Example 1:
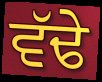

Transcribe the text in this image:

ਵੱਢੇ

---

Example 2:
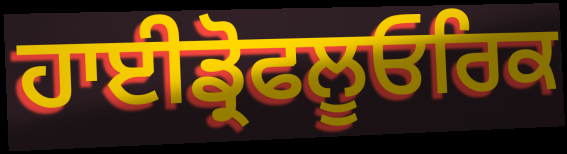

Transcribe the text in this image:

ਹਾਈਡ੍ਰੋਫਲੂਓਰਿਕ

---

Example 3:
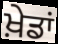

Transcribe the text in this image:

ਖ਼ੇਡਾਂ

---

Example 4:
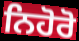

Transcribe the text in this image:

ਨਿਹੋਰੋ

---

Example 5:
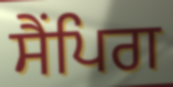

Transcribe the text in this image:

ਸੈਂਪਿਗ